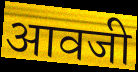
आवजी